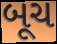
બૂચ